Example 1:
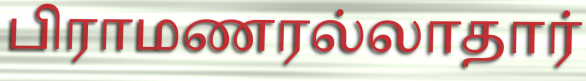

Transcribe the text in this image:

பிராமணரல்லாதார்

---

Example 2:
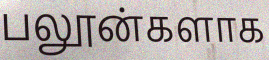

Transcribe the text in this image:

பலூன்களாக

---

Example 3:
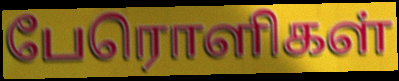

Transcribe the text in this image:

பேரொளிகள்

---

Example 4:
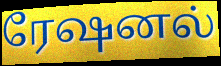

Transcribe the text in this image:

ரேஷனல்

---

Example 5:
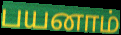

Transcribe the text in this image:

பயனாம்